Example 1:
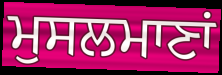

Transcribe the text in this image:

ਮੁਸਲਮਾਣਾਂ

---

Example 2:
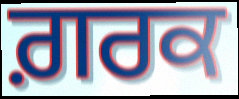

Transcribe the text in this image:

ਗ਼ਰਕ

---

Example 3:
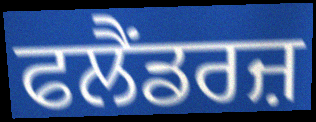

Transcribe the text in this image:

ਫਲੈਂਡਰਜ਼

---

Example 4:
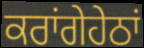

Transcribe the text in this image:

ਕਰਾਂਗੇਹੇਠਾਂ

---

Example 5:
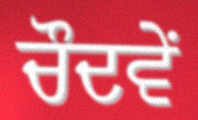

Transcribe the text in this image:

ਚੌਦਵੇਂ